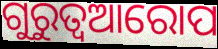
ଗୁରୁତ୍ଵଆରୋପ